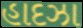
હાદઝા